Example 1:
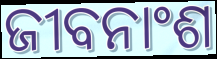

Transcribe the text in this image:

ଜୀବନାଂଶ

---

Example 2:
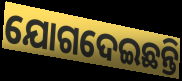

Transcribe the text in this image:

ଯୋଗଦେଇଛନ୍ତି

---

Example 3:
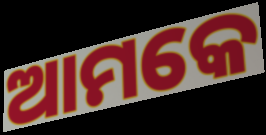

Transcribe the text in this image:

ଆମକେ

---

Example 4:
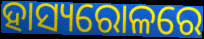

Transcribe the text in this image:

ହାସ୍ୟରୋଳରେ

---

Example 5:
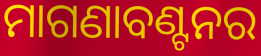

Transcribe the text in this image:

ମାଗଣାବଣ୍ଟନର